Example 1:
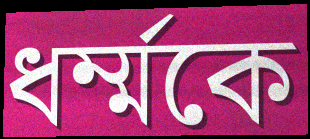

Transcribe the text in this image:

ধর্ম্মকে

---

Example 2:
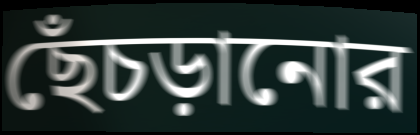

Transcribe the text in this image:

ছেঁচড়ানোর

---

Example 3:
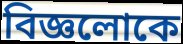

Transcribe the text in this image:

বিজ্ঞলোকে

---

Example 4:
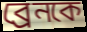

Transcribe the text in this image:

ব্রেনকে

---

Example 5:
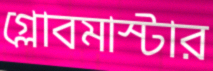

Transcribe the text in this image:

গ্লোবমাস্টার